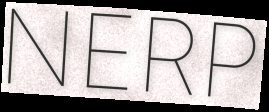
NERP